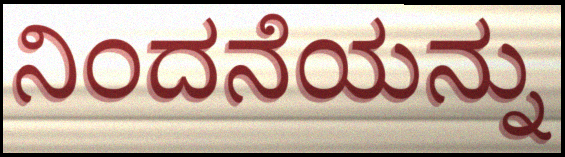
ನಿಂದನೆಯನ್ನು